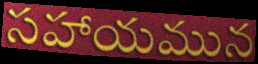
సహాయమున